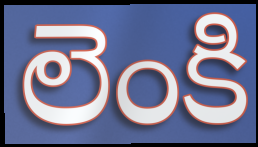
లెంకి